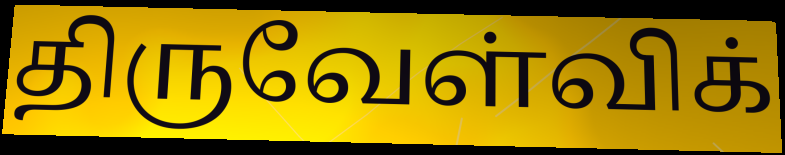
திருவேள்விக்